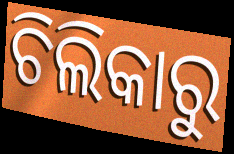
ଚିଲିକାରୁ